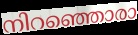
നിറഞ്ഞൊരാ